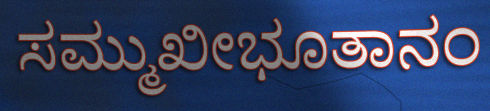
ಸಮ್ಮುಖೀಭೂತಾನಂ